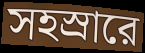
সহস্রারে